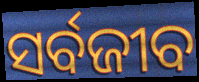
ସର୍ବଜୀବ